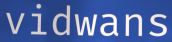
vidwans